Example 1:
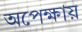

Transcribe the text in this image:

অপেক্ষায়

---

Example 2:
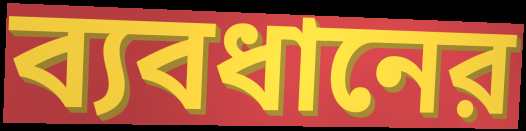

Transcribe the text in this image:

ব্যবধানের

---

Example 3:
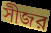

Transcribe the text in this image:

সীজর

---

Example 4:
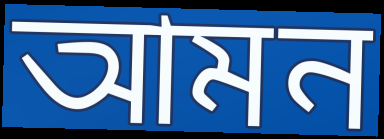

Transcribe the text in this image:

আমন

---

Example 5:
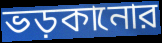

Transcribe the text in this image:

ভড়কানোর